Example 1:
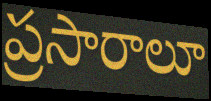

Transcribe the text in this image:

ప్రసారాలూ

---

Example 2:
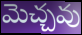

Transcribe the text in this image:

మెచ్చవు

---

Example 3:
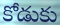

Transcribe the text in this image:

కోడుకు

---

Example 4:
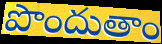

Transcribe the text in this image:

పొందుతాం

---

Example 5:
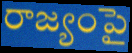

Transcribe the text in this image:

రాజ్యంపై